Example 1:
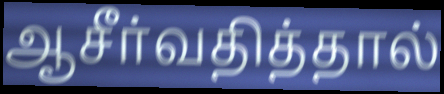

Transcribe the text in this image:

ஆசீர்வதித்தால்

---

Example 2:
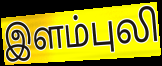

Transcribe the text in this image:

இளம்புலி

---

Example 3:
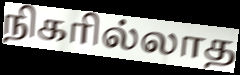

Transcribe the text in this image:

நிகரில்லாத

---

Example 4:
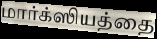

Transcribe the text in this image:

மார்க்ஸியத்தை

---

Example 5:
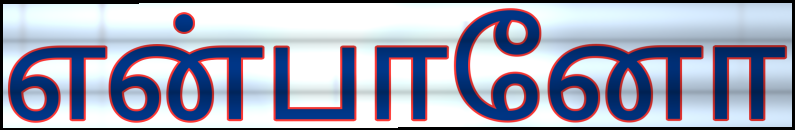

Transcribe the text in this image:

என்பானோ